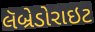
લૅબ્રેડોરાઇટ